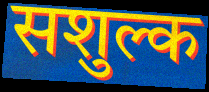
सशुल्क